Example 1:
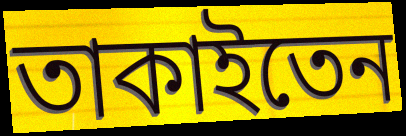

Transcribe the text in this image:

তাকাইতেন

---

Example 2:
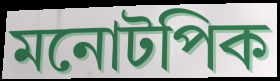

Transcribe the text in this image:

মনোটপিক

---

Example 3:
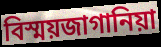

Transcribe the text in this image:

বিস্ময়জাগানিয়া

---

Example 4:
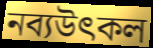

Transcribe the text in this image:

নব্যউৎকল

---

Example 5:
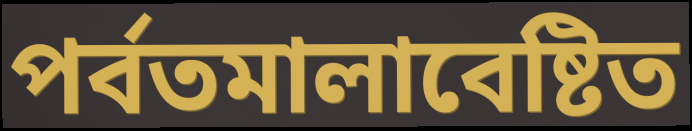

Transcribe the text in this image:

পর্বতমালাবেষ্টিত